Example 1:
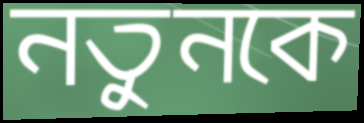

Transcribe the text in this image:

নতুনকে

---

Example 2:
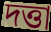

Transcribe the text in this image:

দত্তা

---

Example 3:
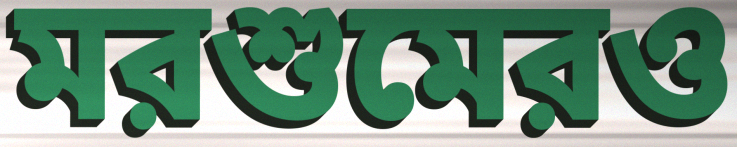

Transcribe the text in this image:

মরশুমেরও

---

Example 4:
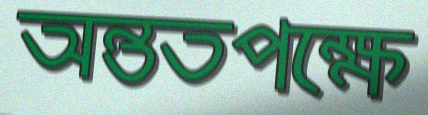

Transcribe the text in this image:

অন্ততপক্ষে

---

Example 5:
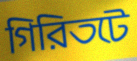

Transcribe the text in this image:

গিরিতটে